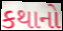
કથાનો